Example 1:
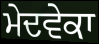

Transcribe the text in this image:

ਮੇਦਵੇਕਾ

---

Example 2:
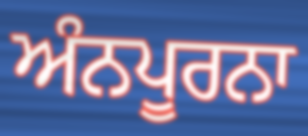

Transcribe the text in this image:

ਅੰਨਪੂਰਨਾ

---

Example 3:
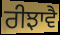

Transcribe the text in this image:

ਰੀਝਾਵੈ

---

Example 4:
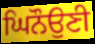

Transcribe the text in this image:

ਘਿਨੌਉਣੀ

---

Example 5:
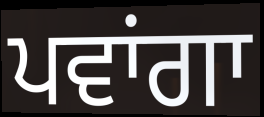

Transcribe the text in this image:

ਪਵਾਂਗਾ